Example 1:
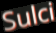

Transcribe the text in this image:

Sulci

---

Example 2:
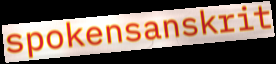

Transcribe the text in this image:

spokensanskrit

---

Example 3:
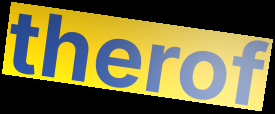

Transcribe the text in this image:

therof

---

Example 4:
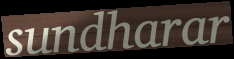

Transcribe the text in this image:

sundharar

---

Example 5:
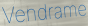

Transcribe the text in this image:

Vendrame